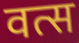
वत्स